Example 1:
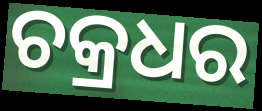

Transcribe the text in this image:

ଚକ୍ରଧର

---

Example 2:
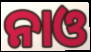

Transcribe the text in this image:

ନାଓ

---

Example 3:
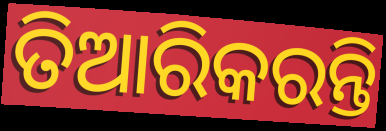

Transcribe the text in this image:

ତିଆରିକରନ୍ତି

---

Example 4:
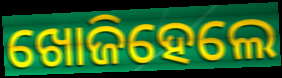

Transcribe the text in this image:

ଖୋଜିହେଲେ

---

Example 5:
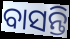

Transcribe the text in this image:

ବାସନ୍ତି